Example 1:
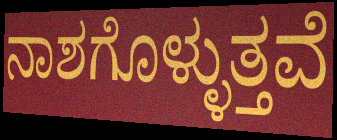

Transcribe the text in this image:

ನಾಶಗೊಳ್ಳುತ್ತವೆ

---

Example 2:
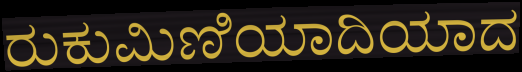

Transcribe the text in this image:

ರುಕುಮಿಣಿಯಾದಿಯಾದ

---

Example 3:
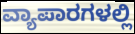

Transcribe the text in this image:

ವ್ಯಾಪಾರಗಳಲ್ಲಿ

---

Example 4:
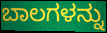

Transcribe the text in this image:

ಬಾಲಗಳನ್ನು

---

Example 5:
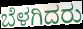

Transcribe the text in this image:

ಬೆಳಗಿದರು